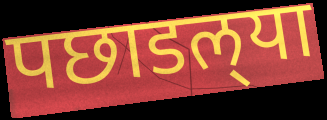
पछाडल्या